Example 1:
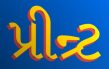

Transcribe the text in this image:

પ્રીન્ર્ટ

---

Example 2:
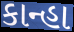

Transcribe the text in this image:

કાન્હા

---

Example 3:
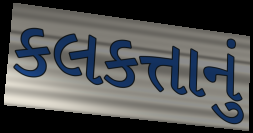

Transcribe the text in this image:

કલકત્તાનું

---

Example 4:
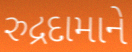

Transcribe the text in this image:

રુદ્રદામાને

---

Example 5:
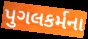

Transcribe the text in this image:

પુગલકર્મના